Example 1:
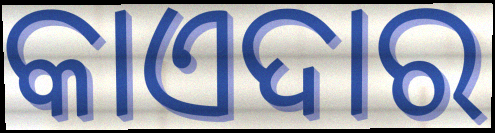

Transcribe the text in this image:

କାଏଦାର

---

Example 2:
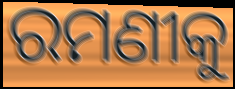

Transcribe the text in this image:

ରମଣୀକୁ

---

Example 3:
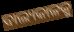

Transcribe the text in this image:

ବାଲ୍ୟକାଳକୁ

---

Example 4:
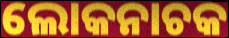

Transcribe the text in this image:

ଲୋକନାଚକ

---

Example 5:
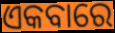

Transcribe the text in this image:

ଏକବାରେ